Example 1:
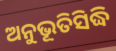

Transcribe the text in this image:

ଅନୁଭୂତିସିଦ୍ଧି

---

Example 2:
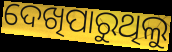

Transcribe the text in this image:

ଦେଖିପାରୁଥିଲୁ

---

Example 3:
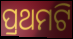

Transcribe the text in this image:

ପ୍ରଥମଟି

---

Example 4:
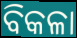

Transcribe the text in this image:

ବିକଳା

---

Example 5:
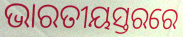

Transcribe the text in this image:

ଭାରତୀୟସ୍ତରରେ